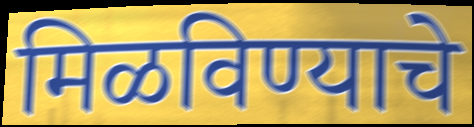
मिळविण्याचे